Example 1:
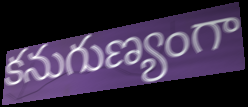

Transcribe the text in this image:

కనుగుణ్యంగా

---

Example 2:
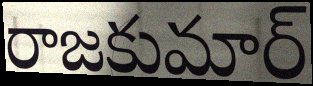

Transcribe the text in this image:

రాజకుమార్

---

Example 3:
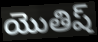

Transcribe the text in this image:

యొతిష్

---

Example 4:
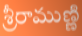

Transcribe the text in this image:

శ్రీరాముణ్ణి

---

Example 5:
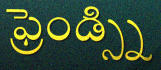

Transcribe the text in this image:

ఫ్రెండ్స్ని